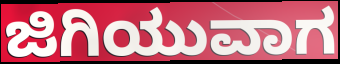
ಜಿಗಿಯುವಾಗ